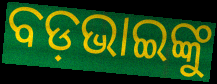
ବଡ଼ଭାଇଙ୍କୁ